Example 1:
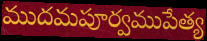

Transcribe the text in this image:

ముదమపూర్వముపేత్య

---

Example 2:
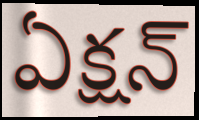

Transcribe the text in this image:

ఏక్షన్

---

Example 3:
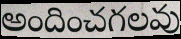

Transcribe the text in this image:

అందించగలవు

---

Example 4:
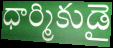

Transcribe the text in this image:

ధార్మికుడై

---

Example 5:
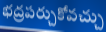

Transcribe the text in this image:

భద్రపర్చుకోవచ్చు